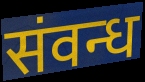
संवन्ध